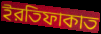
ইরতিফাকাত